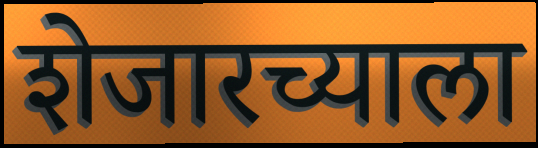
शेजारच्याला